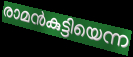
രാമൻകുട്ടിയെന്ന